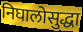
निघालोसुद्धा